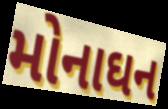
મોનાઘન